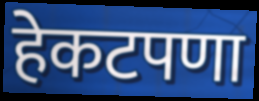
हेकटपणा